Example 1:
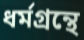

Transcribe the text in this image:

ধর্মগ্রন্থে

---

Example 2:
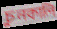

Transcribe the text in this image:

চুনকালি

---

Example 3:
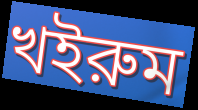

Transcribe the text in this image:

খইরুম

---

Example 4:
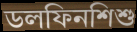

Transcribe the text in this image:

ডলফিনশিশু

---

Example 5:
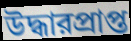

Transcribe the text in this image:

উদ্ধারপ্রাপ্ত